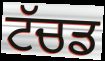
ਟੱਚਡ